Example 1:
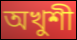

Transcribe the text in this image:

অখুশী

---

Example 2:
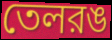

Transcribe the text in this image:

তেলরঙ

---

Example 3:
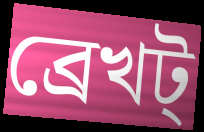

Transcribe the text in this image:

ব্রেখট্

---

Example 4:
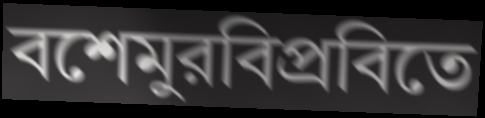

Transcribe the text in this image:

বশেমুরবিপ্রবিতে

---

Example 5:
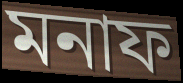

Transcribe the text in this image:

মনাফ